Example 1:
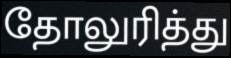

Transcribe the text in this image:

தோலுரித்து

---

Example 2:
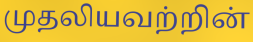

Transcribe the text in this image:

முதலியவற்றின்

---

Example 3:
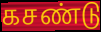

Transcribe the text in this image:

கசண்டு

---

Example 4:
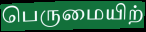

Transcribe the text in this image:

பெருமையிற்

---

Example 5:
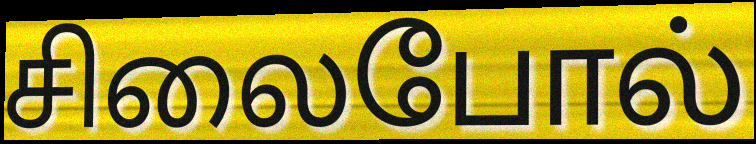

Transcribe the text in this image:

சிலைபோல்